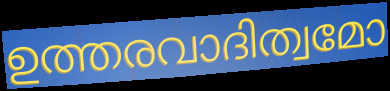
ഉത്തരവാദിത്വമോ